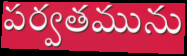
పర్వతమును